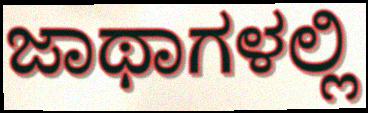
ಜಾಥಾಗಳಲ್ಲಿ